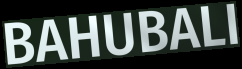
BAHUBALI